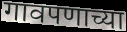
गावपणाच्या